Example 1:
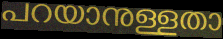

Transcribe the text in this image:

പറയാനുള്ളതാ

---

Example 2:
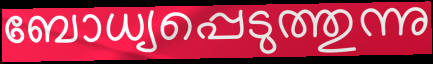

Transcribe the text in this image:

ബോധ്യപ്പെടുത്തുന്നു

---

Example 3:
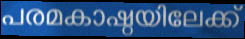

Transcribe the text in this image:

പരമകാഷ്ഠയിലേക്ക്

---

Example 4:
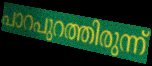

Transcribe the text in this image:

പാറപുറത്തിരുന്ന്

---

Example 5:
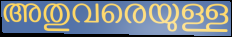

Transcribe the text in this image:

അതുവരെയുള്ള